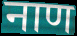
नाण